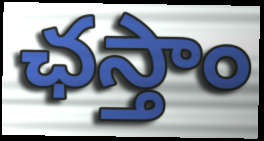
ఛస్తాం